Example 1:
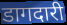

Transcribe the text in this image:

डागदारी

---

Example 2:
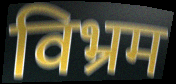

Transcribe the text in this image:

विभ्रम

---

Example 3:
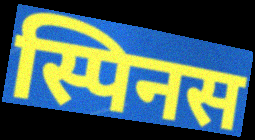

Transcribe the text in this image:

स्पिनस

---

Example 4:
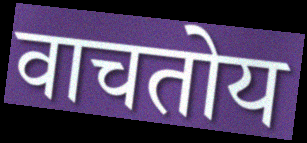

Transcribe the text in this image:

वाचतोय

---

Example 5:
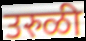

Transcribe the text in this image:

उरुळी